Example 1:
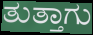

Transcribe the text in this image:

ತುತ್ತಾಗು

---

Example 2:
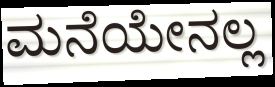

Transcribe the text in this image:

ಮನೆಯೇನಲ್ಲ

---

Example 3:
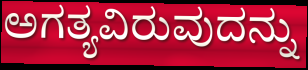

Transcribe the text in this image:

ಅಗತ್ಯವಿರುವುದನ್ನು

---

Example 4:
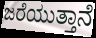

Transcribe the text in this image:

ಜರೆಯುತ್ತಾನೆ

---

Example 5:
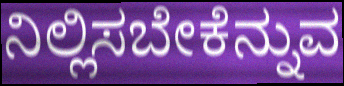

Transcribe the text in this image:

ನಿಲ್ಲಿಸಬೇಕೆನ್ನುವ